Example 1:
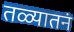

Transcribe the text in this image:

तळ्यातनं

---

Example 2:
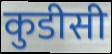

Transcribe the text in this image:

कुडीसी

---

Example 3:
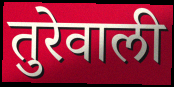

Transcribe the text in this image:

तुरेवाली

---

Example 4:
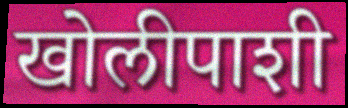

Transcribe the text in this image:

खोलीपाशी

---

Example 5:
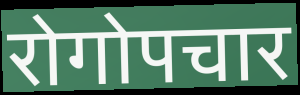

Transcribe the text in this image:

रोगोपचार